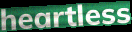
heartless